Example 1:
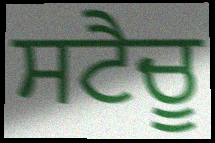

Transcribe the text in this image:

ਸਟੈਚੂ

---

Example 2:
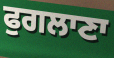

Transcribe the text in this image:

ਫੁਗਲਾਣਾ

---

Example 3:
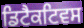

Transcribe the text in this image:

ਡਿਟੈਕਟਿਵਸ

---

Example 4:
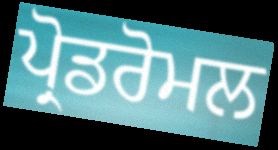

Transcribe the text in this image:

ਪ੍ਰੋਡਰੋਮਲ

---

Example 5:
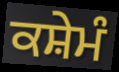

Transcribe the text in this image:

ਕਸ਼ੇਮੰ